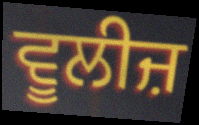
ਵੂਲੀਜ਼